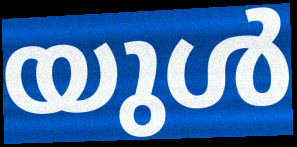
യുൾ